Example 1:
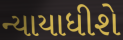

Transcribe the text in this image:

ન્યાયાધીશે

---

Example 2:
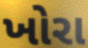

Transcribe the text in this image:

ખોરા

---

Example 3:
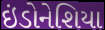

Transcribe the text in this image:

ઇંડોનેશિયા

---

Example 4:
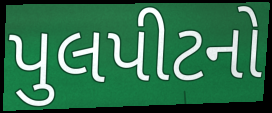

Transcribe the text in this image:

પુલપીટનો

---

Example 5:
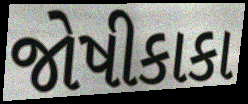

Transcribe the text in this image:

જોષીકાકા